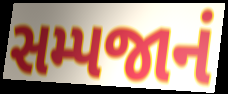
સમ્પજાનં